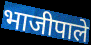
भाजीपाले